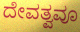
ದೇವತ್ವವೂ